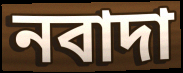
নবাদা